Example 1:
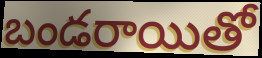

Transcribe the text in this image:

బండరాయితో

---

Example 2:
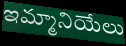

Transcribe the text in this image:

ఇమ్మానియేలు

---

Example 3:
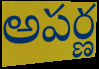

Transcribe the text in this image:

అపర్ణ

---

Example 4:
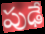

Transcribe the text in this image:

పుఢే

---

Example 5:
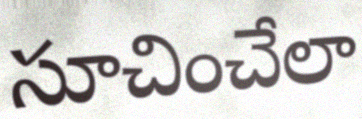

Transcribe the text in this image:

సూచించేలా